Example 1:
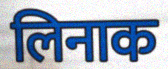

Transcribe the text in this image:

लिनाक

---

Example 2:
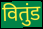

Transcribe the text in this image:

वितुंड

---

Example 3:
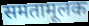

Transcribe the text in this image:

समतामूलक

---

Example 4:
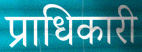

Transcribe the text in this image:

प्राधिकारी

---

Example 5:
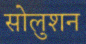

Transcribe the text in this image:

सोलुशन